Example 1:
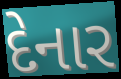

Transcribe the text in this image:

દેનાર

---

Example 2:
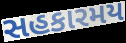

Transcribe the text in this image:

સહકારમય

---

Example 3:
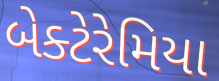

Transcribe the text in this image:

બેક્ટેરેમિયા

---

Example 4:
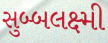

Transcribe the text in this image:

સુબ્બલક્ષ્મી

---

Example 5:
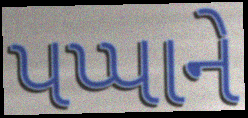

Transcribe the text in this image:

પપ્પાને